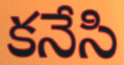
కనేసి